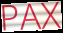
PAX